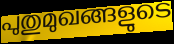
പുതുമുഖങ്ങളുടെ